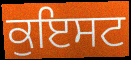
ਕੁਇਸਟ